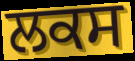
ਲਕਸ